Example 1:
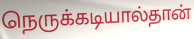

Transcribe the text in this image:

நெருக்கடியால்தான்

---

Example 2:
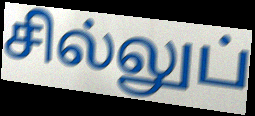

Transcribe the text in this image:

சில்லுப்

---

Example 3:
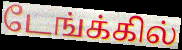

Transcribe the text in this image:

டேங்க்கில்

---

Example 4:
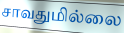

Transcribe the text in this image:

சாவதுமில்லை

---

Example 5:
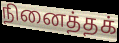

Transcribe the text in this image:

நினைத்தக்